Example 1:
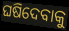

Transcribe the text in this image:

ଘଷିଦେବାକୁ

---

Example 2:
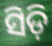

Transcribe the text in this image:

ସିଡ଼ି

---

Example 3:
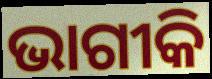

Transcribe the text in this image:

ଭାଗୀକି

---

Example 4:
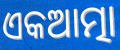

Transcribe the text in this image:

ଏକଆତ୍ମା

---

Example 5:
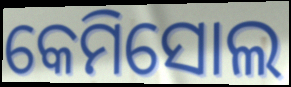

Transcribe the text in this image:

କେମିସୋଲ